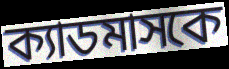
ক্যাডমাসকে